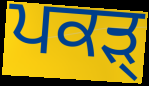
ਪਕੜ੍